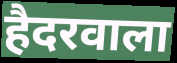
हैदरवाला